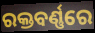
ରକ୍ତବର୍ଣ୍ଣରେ